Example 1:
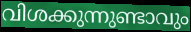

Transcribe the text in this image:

വിശക്കുന്നുണ്ടാവും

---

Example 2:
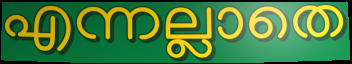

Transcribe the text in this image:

എന്നല്ലാതെ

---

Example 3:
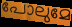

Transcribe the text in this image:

പോലുമേ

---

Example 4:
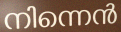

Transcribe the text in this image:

നിന്നെൻ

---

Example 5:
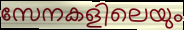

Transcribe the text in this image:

സേനകളിലെയും